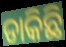
ଡାକିଛି